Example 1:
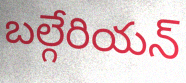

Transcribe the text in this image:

బల్గేరియన్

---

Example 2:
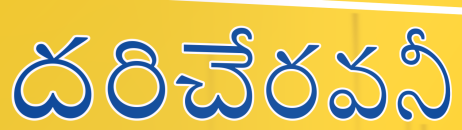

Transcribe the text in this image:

దరిచేరవనీ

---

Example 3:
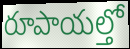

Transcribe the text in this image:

రూపాయల్తో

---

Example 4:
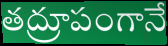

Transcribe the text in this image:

తద్రూపంగానే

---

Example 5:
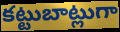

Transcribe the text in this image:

కట్టుబాట్లుగా